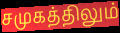
சமுகத்திலும்